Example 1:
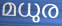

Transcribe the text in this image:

മധുര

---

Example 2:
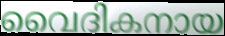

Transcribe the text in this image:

വൈദികനായ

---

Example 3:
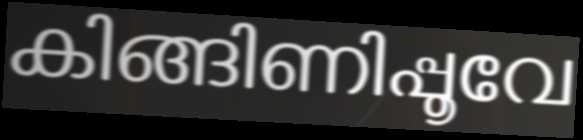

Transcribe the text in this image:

കിങ്ങിണിപ്പൂവേ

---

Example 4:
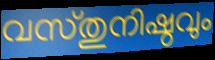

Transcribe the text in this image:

വസ്തുനിഷ്ഠവും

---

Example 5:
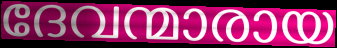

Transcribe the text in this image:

ദേവന്മാരായ